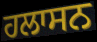
ਹਲਾਸਨ